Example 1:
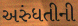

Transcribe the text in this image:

અરુંધતીની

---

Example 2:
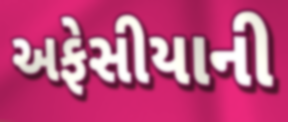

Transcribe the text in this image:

અફેસીયાની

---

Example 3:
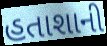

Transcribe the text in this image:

હતાશાની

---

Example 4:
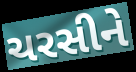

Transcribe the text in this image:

ચરસીને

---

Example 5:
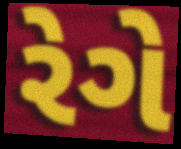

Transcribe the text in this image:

રેગે